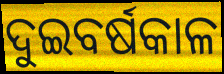
ଦୁଇବର୍ଷକାଳ